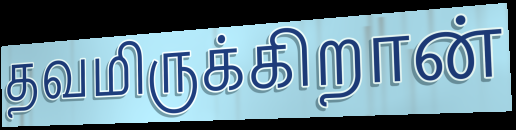
தவமிருக்கிறான்